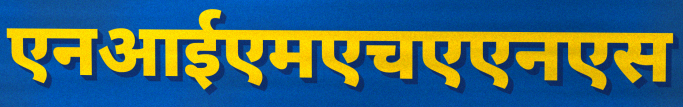
एनआईएमएचएएनएस